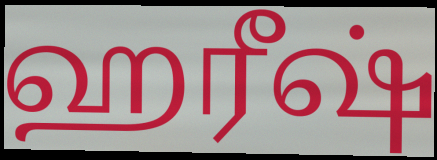
ஹரீஷ்